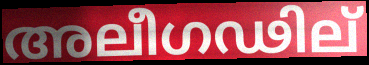
അലീഗഢില്